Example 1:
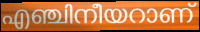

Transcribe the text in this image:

എഞ്ചിനീയറാണ്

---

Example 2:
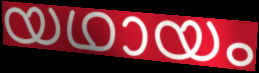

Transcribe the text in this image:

യഥായം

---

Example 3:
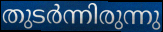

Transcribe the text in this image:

തുടർന്നിരുന്നു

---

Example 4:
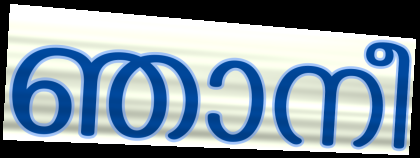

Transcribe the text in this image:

ഞാനീ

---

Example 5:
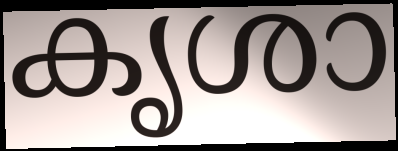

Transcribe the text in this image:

കൃശാ